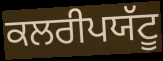
ਕਲਰੀਪਯੱਟੂ